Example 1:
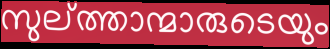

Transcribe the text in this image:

സുല്ത്താന്മാരുടെയും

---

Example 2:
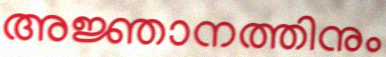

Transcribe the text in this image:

അജ്ഞാനത്തിനും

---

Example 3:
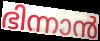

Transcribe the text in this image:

ഭിന്നാൻ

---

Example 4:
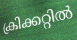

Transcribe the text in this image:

ക്രിക്കറ്റിൽ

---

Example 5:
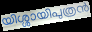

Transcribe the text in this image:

യിശ്ശായിപുത്രൻ